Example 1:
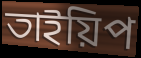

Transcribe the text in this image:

তাইয়িপ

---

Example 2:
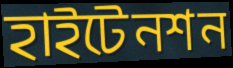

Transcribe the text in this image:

হাইটেনশন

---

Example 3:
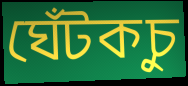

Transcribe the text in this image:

ঘেঁটকচু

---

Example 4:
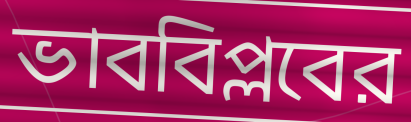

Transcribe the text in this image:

ভাববিপ্লবের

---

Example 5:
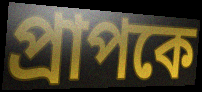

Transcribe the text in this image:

প্রাপকে